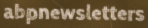
abpnewsletters